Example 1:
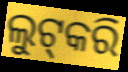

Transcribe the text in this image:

ଲୁଟ୍‍କରି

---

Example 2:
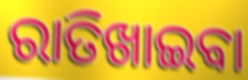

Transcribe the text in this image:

ରାତିଖାଇବା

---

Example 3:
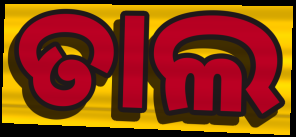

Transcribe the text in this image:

ତାଲ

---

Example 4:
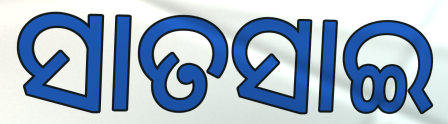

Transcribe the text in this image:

ସାତସାଇ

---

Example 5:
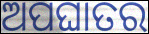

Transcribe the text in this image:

ଅପଘାତର